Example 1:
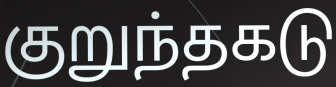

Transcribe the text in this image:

குறுந்தகடு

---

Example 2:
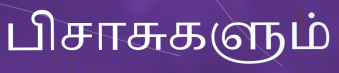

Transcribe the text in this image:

பிசாசுகளும்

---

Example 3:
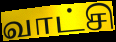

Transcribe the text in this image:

வாட்சி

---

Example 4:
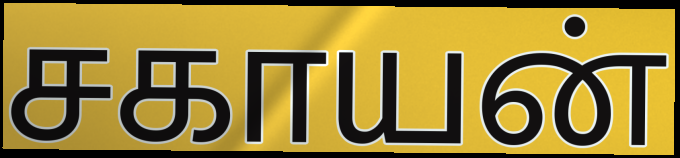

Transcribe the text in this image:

சகாயன்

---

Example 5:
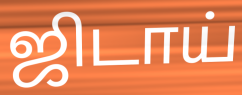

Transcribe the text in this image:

ஜிடாய்